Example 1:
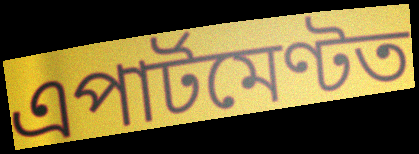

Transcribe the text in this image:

এপাৰ্টমেণ্টত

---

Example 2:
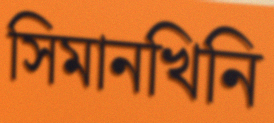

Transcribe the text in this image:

সিমানখিনি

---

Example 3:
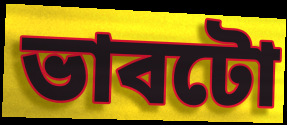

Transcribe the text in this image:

ভাবটো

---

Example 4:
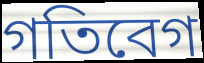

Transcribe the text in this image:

গতিবেগ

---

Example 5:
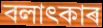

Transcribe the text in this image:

বলাৎকাৰ